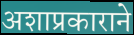
अशाप्रकाराने